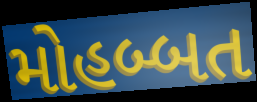
મોહબ્બત